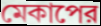
মেকাপের